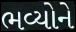
ભવ્યોને